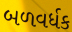
બળવર્ધક